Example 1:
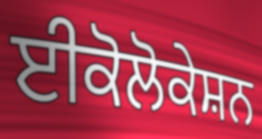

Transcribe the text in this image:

ਈਕੋਲੋਕੇਸ਼ਨ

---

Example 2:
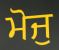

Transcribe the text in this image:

ਮੋਜੁ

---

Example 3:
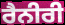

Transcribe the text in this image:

ਰੈਨੀਰੀ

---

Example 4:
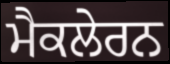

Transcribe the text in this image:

ਮੈਕਲੇਰਨ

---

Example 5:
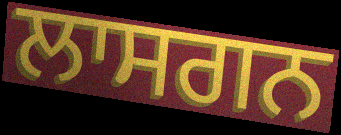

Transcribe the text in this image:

ਲਾਸਗਨ